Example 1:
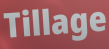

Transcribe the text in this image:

Tillage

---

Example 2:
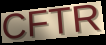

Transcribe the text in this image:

CFTR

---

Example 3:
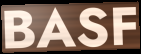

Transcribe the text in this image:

BASF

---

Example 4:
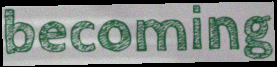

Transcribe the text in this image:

becoming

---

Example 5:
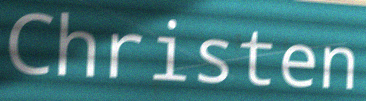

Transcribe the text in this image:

Christen